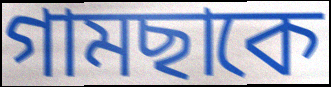
গামছাকে